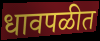
धावपळीत